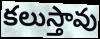
కలుస్తావు